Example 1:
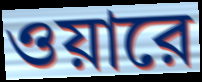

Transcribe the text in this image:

ওয়ারে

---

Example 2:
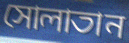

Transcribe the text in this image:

সোলাতান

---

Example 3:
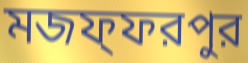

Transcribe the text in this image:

মজফ্ফরপুর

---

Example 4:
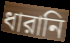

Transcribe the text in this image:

ধারানি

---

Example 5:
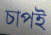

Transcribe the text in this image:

চাপই